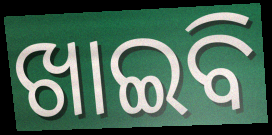
ଖାଇବି